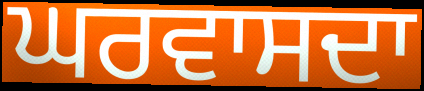
ਘਰਵਾਸਦਾ